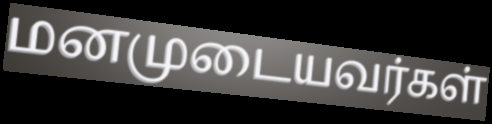
மனமுடையவர்கள்